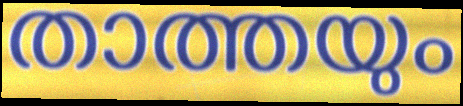
താത്തയും